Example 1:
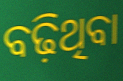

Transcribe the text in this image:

ବଢ଼ିଥିବା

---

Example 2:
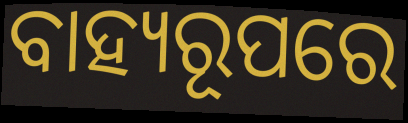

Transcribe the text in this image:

ବାହ୍ୟରୂପରେ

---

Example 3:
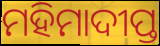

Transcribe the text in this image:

ମହିମାଦୀପ୍ତ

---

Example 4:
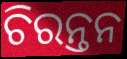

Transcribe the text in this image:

ଚିରନ୍ତନ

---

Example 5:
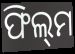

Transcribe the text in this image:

ଫିଲ୍‌ମ